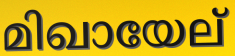
മിഖായേല്